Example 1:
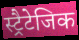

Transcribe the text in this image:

स्ट्रैटेजिक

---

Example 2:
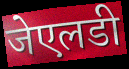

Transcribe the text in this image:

जेएलडी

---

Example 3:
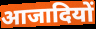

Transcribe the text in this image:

आजादियों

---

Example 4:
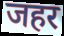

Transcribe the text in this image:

जहर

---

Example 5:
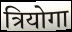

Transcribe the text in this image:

त्रियोगा